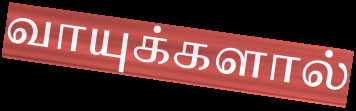
வாயுக்களால்